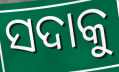
ସଦାକୁ